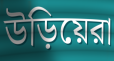
উড়িয়েরা